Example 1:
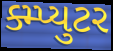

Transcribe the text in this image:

ક્મ્પ્યુટર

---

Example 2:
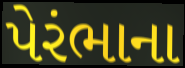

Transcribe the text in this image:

પેરંભાના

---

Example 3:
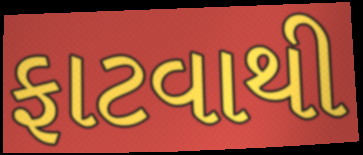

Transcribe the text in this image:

ફાટવાથી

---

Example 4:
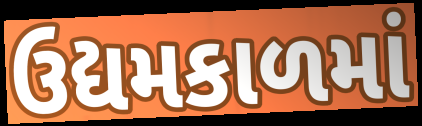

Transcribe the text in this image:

ઉદ્યમકાળમાં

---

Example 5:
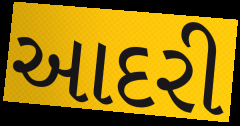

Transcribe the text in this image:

આદરી